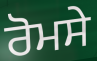
ਰੋਮਸੇ